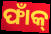
ଫାଁକ୍